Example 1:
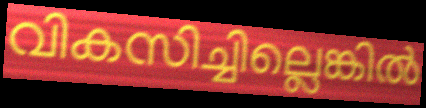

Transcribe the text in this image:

വികസിച്ചില്ലെങ്കിൽ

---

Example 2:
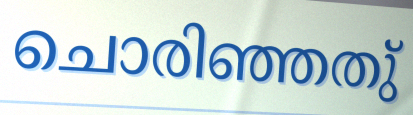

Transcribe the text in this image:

ചൊരിഞ്ഞതു്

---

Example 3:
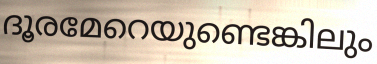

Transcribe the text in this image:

ദൂരമേറെയുണ്ടെങ്കിലും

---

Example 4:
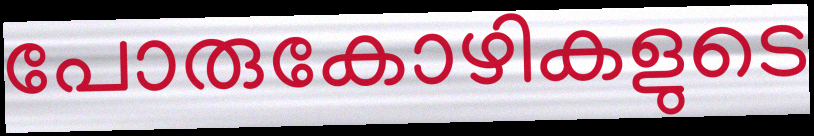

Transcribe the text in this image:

പോരുകോഴികളുടെ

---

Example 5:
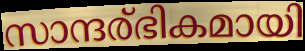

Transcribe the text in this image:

സാന്ദര്ഭികമായി